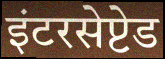
इंटरसेप्टेड